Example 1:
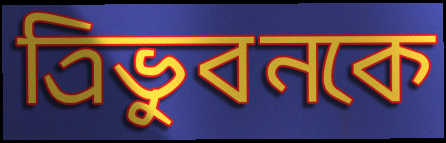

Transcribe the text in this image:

ত্রিভুবনকে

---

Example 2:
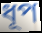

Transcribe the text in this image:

ধূপ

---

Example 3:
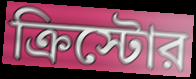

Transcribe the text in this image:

ক্রিস্টোর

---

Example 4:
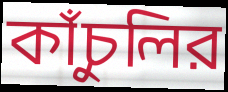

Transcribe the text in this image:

কাঁচুলির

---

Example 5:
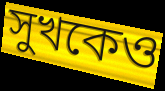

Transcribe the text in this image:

সুখকেও